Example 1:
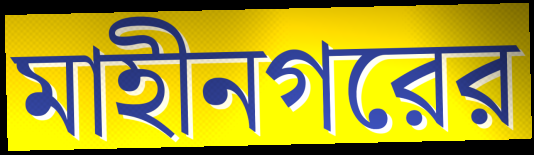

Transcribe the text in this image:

মাহীনগরের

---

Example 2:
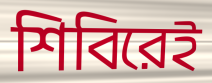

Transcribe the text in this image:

শিবিরেই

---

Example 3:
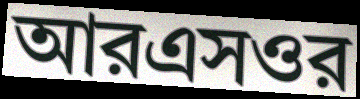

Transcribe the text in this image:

আরএসওর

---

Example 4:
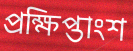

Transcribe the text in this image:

প্রক্ষিপ্তাংশ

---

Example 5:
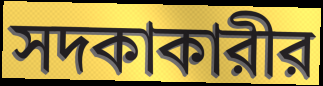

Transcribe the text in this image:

সদকাকারীর